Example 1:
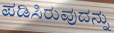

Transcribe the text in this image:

ಪಡಿಸಿರುವುದನ್ನು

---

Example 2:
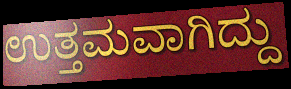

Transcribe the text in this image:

ಉತ್ತಮವಾಗಿದ್ದು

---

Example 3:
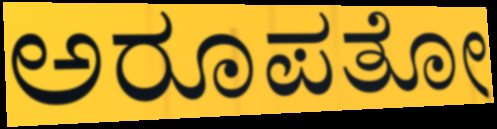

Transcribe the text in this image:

ಅರೂಪತೋ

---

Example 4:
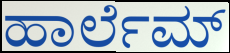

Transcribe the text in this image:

ಹಾರ್ಲೆಮ್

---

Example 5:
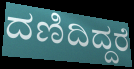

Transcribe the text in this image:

ದಣಿದಿದ್ದರೆ